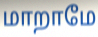
மாறாமே